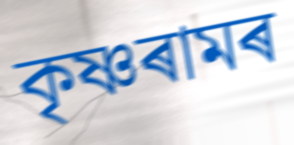
কৃষ্ণৰামৰ